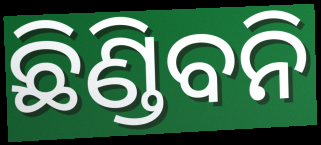
ଛିଣ୍ଡିବନି